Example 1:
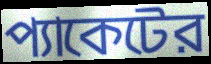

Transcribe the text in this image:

প্যাকেটের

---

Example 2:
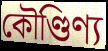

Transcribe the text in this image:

কৌণ্ডিণ্য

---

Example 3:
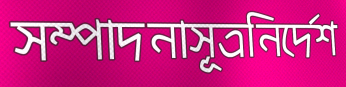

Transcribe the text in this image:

সম্পাদনাসূত্রনির্দেশ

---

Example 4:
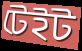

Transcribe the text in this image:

টেইট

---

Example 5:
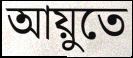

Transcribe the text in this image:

আয়ুতে